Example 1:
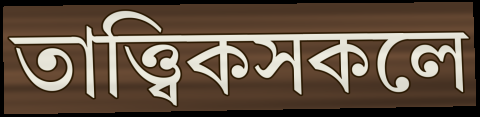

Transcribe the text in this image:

তাত্ত্বিকসকলে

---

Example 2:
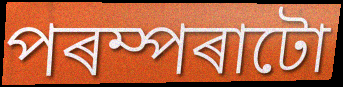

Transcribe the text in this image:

পৰম্পৰাটো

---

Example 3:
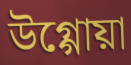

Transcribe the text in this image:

উগ্গোয়া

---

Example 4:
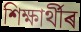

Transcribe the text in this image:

শিক্ষাৰ্থীৰ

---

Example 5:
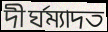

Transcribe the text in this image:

দীৰ্ঘম্যাদত